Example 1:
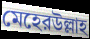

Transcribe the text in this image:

মেহেরউল্লাহ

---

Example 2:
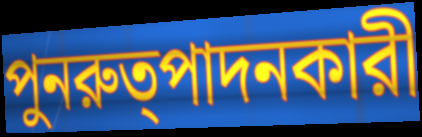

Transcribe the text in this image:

পুনরুত্পাদনকারী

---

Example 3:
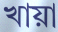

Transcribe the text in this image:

খায়া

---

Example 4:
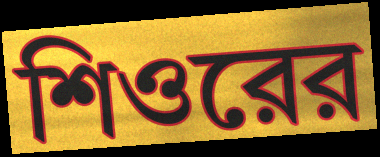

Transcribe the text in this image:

শিওরের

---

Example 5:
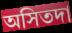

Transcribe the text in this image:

অসিতদা